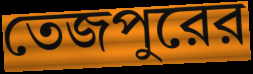
তেজপুরের